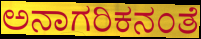
ಅನಾಗರಿಕನಂತೆ